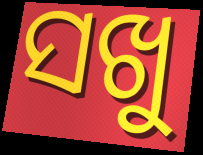
ସଖୁ